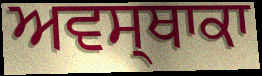
ਅਵਸ੍ਥਾਕਾ